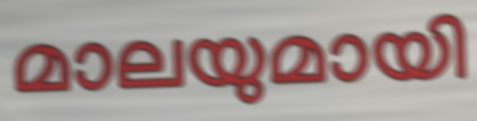
മാലയുമായി